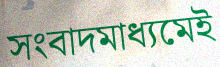
সংবাদমাধ্যমেই